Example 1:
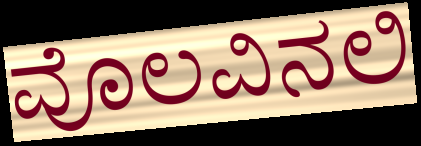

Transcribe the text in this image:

ವೊಲವಿನಲಿ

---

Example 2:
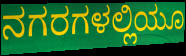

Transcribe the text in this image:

ನಗರಗಳಲ್ಲಿಯೂ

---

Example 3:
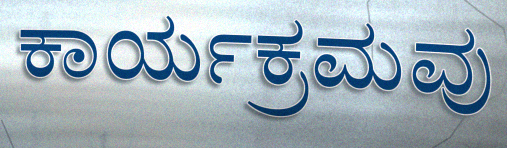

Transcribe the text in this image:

ಕಾರ್ಯಕ್ರಮವು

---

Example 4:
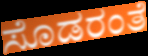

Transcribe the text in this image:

ಸೊಡರಂತೆ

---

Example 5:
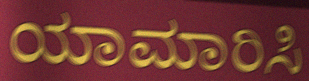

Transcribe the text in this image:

ಯಾಮಾರಿಸಿ